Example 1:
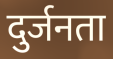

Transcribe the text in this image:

दुर्जनता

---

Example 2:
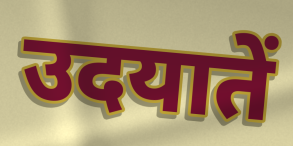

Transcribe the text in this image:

उदयातें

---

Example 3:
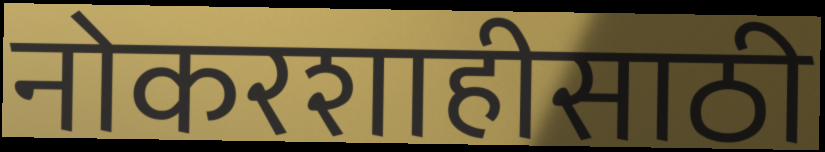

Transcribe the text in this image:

नोकरशाहीसाठी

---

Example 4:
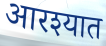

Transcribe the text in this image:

आरश्यात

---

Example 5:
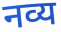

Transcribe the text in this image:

नव्य